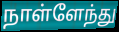
நாள்ளேந்து